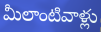
మీలాంటివాళ్లు